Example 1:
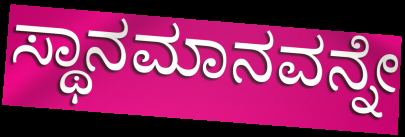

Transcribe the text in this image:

ಸ್ಥಾನಮಾನವನ್ನೇ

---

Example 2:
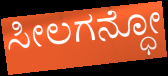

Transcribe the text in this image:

ಸೀಲಗನ್ಧೋ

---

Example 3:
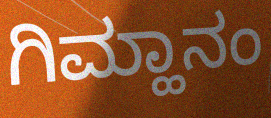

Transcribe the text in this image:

ಗಿಮ್ಹಾನಂ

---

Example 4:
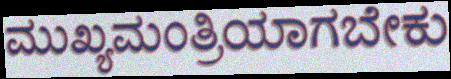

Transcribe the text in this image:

ಮುಖ್ಯಮಂತ್ರಿಯಾಗಬೇಕು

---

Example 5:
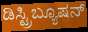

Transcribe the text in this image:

ಡಿಸ್ಟ್ರಿಬ್ಯೂಷನ್